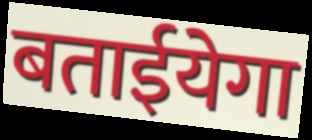
बताईयेगा